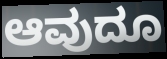
ಆವುದೂ